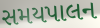
સમયપાલન